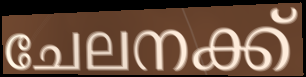
ചേലനക്ക്